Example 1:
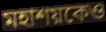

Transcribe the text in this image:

মহাশয়কেও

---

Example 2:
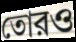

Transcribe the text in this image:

তোরও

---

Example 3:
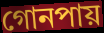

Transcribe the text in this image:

গোনপায়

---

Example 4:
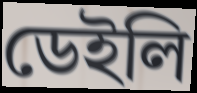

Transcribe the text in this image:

ডেইলি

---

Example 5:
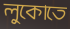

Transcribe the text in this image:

লুকোতে